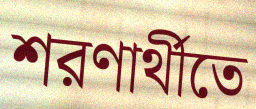
শরণার্থীতে